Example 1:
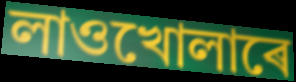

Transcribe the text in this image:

লাওখোলাৰে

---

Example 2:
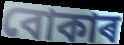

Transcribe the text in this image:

বোকাৰ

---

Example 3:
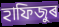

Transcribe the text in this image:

হাফিজুৰ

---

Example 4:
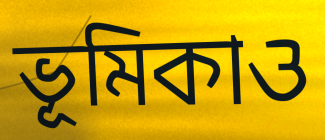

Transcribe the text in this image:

ভূমিকাও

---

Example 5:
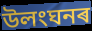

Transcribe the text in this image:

উলংঘনৰ